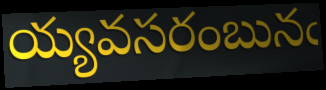
య్యవసరంబునఁ